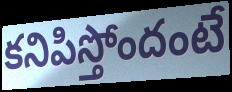
కనిపిస్తోందంటే